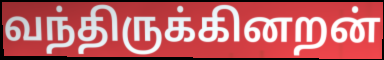
வந்திருக்கினறன்